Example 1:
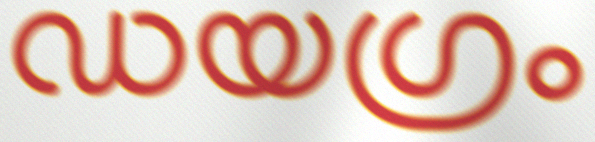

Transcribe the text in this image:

ഡയഗ്രം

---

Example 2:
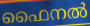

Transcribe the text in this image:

ഫൈനൽ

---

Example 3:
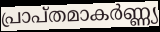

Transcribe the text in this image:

പ്രാപ്തമാകർണ്ണ്യ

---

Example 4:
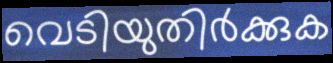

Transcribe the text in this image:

വെടിയുതിർക്കുക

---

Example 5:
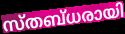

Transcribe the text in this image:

സ്തബ്ധരായി